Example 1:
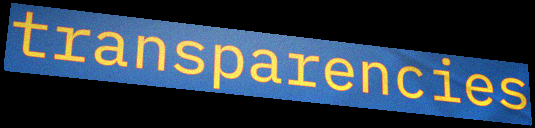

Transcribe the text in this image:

transparencies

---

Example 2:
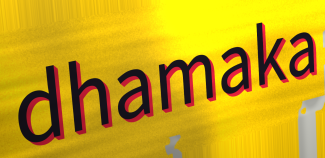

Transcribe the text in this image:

dhamaka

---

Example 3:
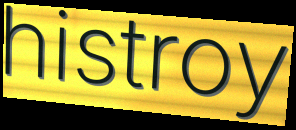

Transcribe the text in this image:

histroy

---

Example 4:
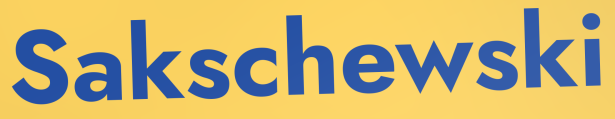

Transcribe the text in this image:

Sakschewski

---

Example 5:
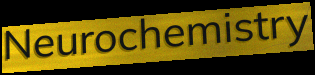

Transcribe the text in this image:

Neurochemistry